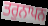
ਤਰੁਨਾਪਨ